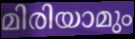
മിരിയാമും